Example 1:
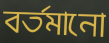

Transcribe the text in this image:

বৰ্তমানো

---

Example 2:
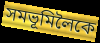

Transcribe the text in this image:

সমভূমিলৈকে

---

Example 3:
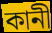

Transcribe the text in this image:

কানী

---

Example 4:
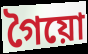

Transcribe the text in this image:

গৈয়ো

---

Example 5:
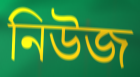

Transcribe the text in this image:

নিউজ